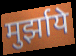
मुर्झाये